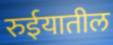
रुईयातील